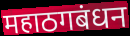
महाठगबंधन